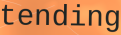
tending